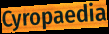
Cyropaedia